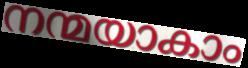
നന്മയാകാം